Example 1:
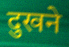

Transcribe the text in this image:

दुखने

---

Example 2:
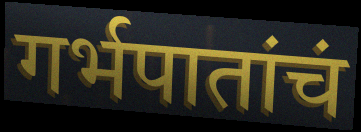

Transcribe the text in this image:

गर्भपातांचं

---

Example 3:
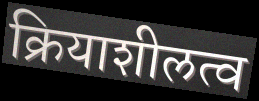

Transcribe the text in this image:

क्रियाशीलत्व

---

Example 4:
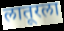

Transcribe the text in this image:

लातूरला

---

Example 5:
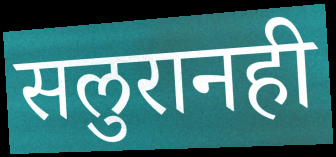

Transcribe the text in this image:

सलुरानही